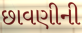
છાવણીની